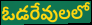
ఓడరేవులలో